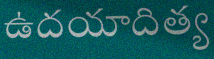
ఉదయాదిత్య